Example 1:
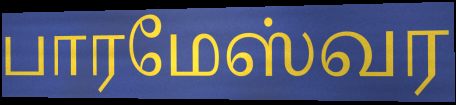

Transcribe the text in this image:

பாரமேஸ்வர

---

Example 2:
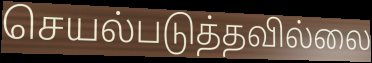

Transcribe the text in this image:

செயல்படுத்தவில்லை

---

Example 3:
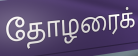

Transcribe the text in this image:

தோழரைக்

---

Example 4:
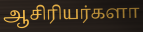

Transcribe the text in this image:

ஆசிரியர்களா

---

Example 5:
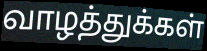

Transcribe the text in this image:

வாழத்துக்கள்